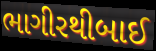
ભાગીરથીબાઈ